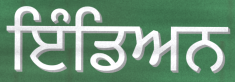
ਇੰਡਿਅਨ